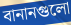
বানানগুলো